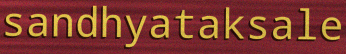
sandhyataksale